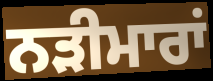
ਨੜੀਮਾਰਾਂ